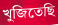
খুজিতেছি